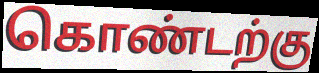
கொண்டற்கு